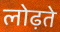
लोढ़ते